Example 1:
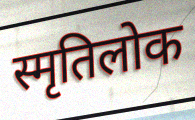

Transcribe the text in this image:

स्मृतिलोक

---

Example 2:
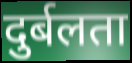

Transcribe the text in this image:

दुर्बलता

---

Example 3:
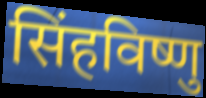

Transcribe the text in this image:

सिंहविष्णु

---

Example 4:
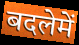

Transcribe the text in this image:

बदलेमें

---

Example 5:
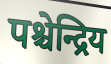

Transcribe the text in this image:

पश्चेन्द्रिय